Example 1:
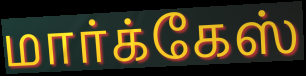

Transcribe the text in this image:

மார்க்கேஸ்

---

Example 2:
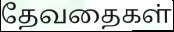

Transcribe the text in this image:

தேவதைகள்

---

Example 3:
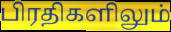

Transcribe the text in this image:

பிரதிகளிலும்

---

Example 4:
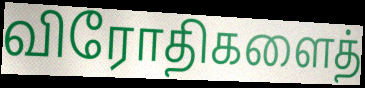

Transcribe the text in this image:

விரோதிகளைத்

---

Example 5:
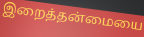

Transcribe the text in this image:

இறைத்தன்மையை